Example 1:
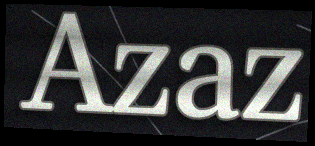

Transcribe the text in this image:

Azaz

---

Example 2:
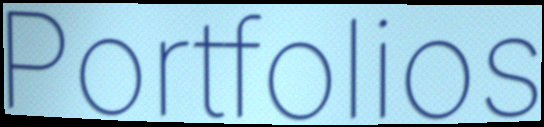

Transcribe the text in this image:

Portfolios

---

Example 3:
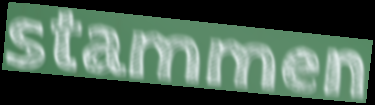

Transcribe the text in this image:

stammen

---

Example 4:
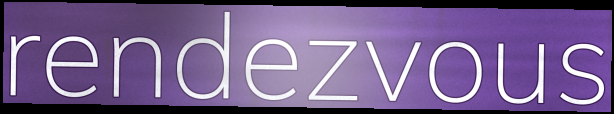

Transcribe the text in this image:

rendezvous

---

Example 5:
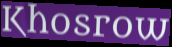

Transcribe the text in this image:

Khosrow